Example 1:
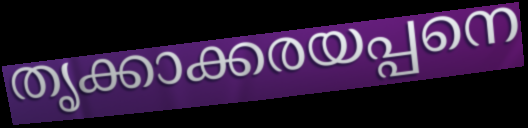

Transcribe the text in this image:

തൃക്കാക്കരയപ്പനെ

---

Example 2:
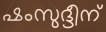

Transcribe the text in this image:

ഷംസുദ്ദീന്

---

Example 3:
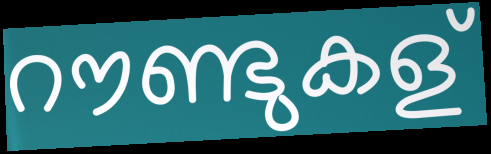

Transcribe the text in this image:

റൗണ്ടുകള്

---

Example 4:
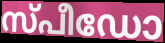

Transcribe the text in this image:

സ്പീഡോ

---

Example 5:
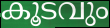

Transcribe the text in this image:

കൂടവും